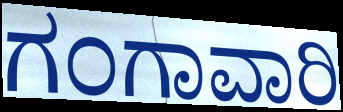
ಗಂಗಾವಾರಿ